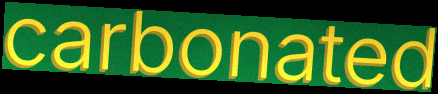
carbonated